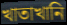
খাতাখানি